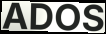
ADOS